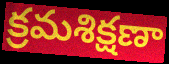
క్రమశిక్షణా